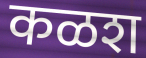
कळश